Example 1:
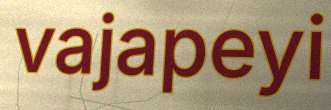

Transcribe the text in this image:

vajapeyi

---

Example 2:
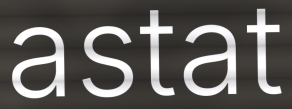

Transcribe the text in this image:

astat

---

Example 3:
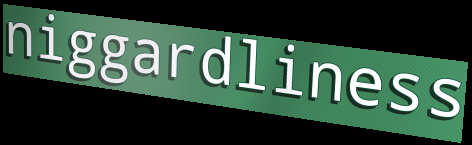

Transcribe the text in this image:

niggardliness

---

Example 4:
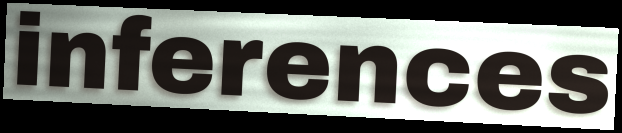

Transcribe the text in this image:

inferences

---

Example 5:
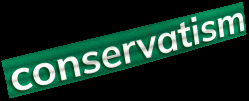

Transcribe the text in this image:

conservatism